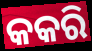
କକରି